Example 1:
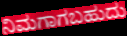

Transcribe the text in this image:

ನಿಮಗಾಗಬಹುದು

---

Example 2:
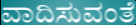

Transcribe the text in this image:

ವಾದಿಸುವಂತೆ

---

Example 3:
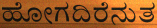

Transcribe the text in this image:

ಹೋಗದಿರೆನುತ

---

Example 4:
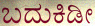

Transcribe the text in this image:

ಬದುಕಿಡೀ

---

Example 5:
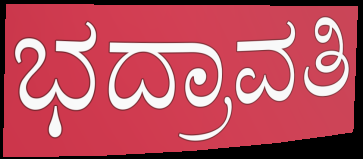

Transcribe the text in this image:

ಭದ್ರಾವತಿ